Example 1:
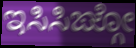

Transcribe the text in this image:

ಇಸಿಸಿಙ್ಗೋ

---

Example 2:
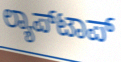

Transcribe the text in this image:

ಲ್ಯಾಪ್‌ಟಾಪ್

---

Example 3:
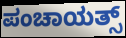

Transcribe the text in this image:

ಪಂಚಾಯತ್ಸ್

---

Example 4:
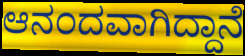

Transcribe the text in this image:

ಆನಂದವಾಗಿದ್ದಾನೆ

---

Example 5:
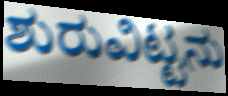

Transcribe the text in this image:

ಶುರುವಿಟ್ಟನು